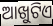
ଆଖୁଟିଏ